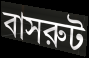
বাসরুট